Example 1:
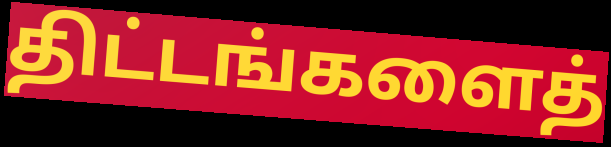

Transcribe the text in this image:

திட்டங்களைத்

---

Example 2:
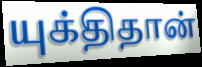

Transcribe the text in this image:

யுக்திதான்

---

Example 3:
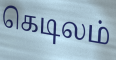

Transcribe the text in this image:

கெடிலம்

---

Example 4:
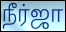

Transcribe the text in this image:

நீர்ஜா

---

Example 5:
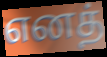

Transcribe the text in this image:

எனத்